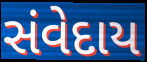
સંવેદાય